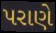
પરાણે